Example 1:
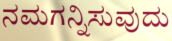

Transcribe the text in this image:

ನಮಗನ್ನಿಸುವುದು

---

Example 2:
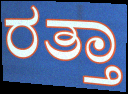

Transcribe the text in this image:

ರತ್ತಾ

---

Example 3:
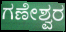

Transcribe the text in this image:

ಗಣೇಶ್ವರ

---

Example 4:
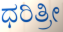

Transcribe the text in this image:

ಧರಿತ್ರೀ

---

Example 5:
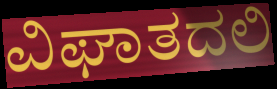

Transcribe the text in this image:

ವಿಘಾತದಲಿ